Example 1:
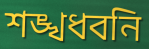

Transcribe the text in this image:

শঙ্খধবনি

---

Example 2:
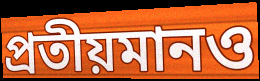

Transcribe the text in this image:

প্রতীয়মানও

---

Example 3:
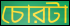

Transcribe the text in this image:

চোরটা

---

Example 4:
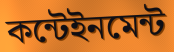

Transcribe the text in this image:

কন্টেইনমেন্ট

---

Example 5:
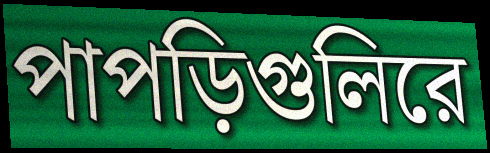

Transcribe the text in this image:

পাপড়িগুলিরে